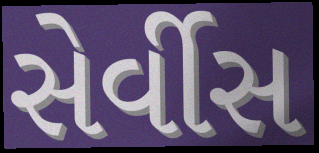
સેર્વીસ